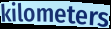
kilometers